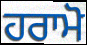
ਹਰਾਮੋ